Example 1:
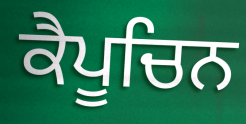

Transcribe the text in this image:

ਕੈਪੂਚਿਨ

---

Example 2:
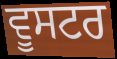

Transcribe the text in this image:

ਵੂਸਟਰ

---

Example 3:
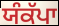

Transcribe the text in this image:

ਯੰਕੱਪਾ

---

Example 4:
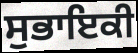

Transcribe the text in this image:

ਸੁਭਾਇਕੀ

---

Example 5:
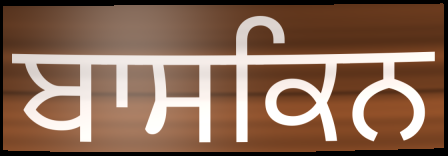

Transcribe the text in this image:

ਬਾਸਕਿਨ